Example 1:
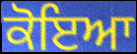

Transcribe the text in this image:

ਕੋਇਆ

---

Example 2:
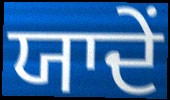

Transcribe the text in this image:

ਯਾਦੇਂ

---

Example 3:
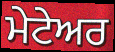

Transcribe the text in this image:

ਮੇਟੇਅਰ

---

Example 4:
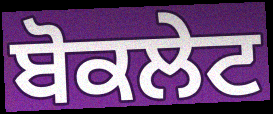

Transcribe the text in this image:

ਬੋਕਲੇਟ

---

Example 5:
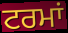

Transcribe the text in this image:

ਟਰਮਾਂ